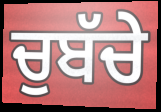
ਚੁਬੱਚੇ